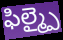
ఫిల్మ్పై